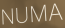
NUMA